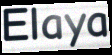
Elaya